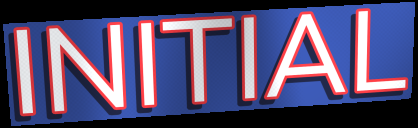
INITIAL